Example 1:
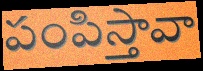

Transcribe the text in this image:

పంపిస్తావా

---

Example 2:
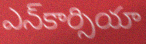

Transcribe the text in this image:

ఎన్‌కార్సియా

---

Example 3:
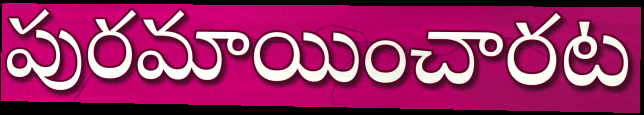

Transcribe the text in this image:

పురమాయించారట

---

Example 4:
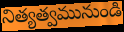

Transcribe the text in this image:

నిత్యత్వమునుండి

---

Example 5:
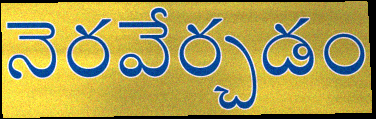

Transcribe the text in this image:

నెరవేర్చడం